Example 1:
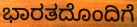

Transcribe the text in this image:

ಭಾರತದೊಂದಿಗೆ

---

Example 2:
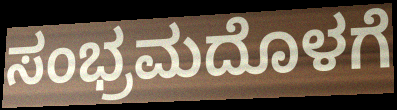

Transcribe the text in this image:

ಸಂಭ್ರಮದೊಳಗೆ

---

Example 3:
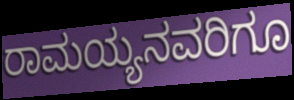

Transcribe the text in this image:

ರಾಮಯ್ಯನವರಿಗೂ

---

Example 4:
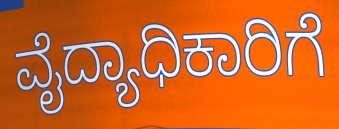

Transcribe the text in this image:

ವೈದ್ಯಾಧಿಕಾರಿಗೆ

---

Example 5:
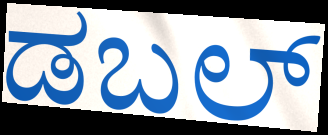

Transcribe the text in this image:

ಡಬಲ್